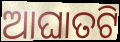
ଆଘାତଟି